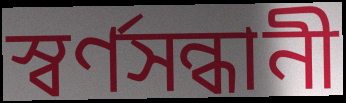
স্বর্ণসন্ধানী